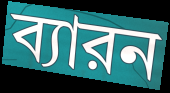
ব্যারন